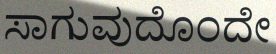
ಸಾಗುವುದೊಂದೇ